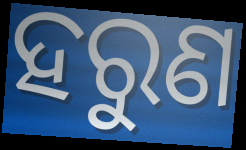
ହରୁଣ